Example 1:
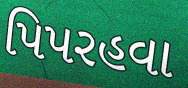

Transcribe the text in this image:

પિપરહવા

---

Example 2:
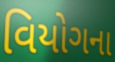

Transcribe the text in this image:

વિયોગના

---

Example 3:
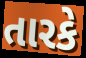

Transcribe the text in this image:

તારકે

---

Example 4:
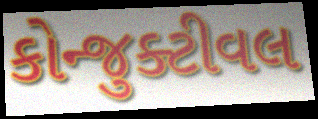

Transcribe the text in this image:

કોન્જુક્ટીવલ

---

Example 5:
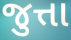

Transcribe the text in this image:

જુત્તા